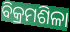
ବିକ୍ରମଶିଳା